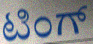
ಟಿಂಗ್